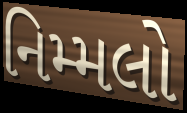
નિમ્મલો